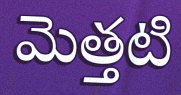
మెత్తటి